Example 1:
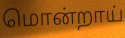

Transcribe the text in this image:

மொன்றாய்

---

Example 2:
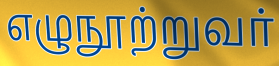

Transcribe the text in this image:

எழுநூற்றுவர்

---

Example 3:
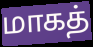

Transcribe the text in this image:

மாகத்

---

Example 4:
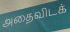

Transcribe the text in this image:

அதைவிடக்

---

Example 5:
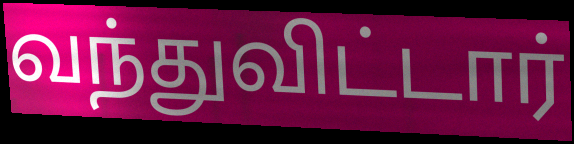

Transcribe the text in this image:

வந்துவிட்டார்